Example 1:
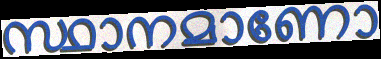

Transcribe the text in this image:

സ്ഥാനമാണോ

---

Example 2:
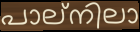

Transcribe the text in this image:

പാല്നിലാ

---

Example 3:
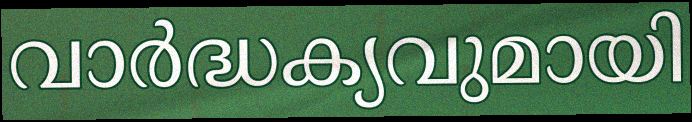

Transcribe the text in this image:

വാർദ്ധക്യവുമായി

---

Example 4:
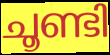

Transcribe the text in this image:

ചൂണ്ടി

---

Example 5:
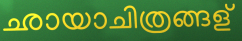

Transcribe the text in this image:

ഛായാചിത്രങ്ങള്